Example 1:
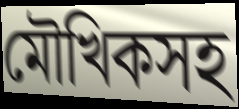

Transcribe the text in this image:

মৌখিকসহ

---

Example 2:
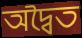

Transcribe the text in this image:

অদ্বৈত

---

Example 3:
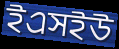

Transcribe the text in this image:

ইএসইউ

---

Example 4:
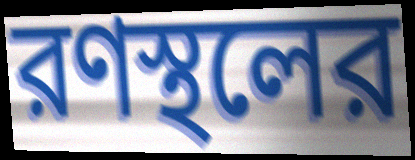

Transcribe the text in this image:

রণস্থলের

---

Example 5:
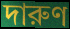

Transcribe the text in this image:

দারুণ